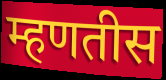
म्हणतीस